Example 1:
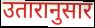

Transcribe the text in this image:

उतारानुसार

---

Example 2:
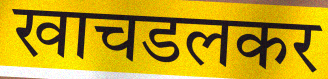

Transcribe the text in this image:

खाचडलकर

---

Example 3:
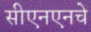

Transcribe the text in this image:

सीएनएनचे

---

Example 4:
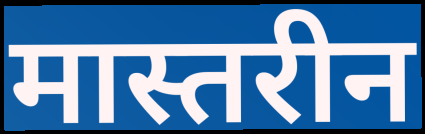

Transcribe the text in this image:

मास्तरीन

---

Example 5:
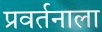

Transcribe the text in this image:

प्रवर्तनाला